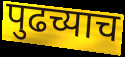
पुढच्याच